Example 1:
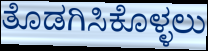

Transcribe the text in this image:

ತೊಡಗಿಸಿಕೊಳ್ಳಲು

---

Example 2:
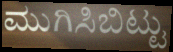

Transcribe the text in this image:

ಮುಗಿಸಿಬಿಟ್ಟು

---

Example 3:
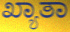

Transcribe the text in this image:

ಖ್ಯಾತಾ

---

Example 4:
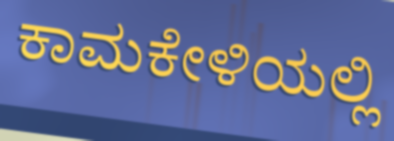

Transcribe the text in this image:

ಕಾಮಕೇಳಿಯಲ್ಲಿ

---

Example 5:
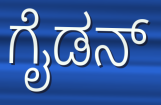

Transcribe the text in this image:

ಗೈಡನ್